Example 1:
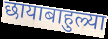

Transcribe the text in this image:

छायाबाहुल्या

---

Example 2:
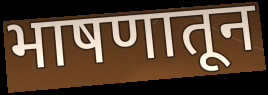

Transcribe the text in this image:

भाषणातून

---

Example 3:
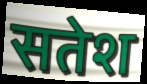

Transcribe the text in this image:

सतेश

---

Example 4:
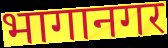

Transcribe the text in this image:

भागानगर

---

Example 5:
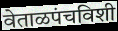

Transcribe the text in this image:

वेताळपंचविशी